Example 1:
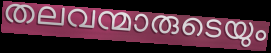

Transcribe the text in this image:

തലവന്മാരുടെയും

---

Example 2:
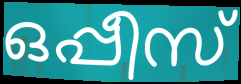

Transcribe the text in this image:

ഒപ്പീസ്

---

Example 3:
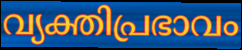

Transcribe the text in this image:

വ്യക്തിപ്രഭാവം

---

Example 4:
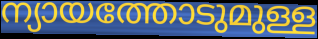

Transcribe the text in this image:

ന്യായത്തോടുമുള്ള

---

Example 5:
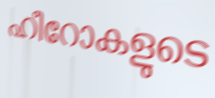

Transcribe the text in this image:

ഹീറോകളുടെ